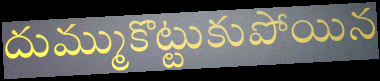
దుమ్ముకొట్టుకుపోయిన